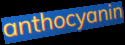
anthocyanin